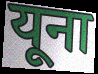
यूना